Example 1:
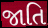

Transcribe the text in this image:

જાતિ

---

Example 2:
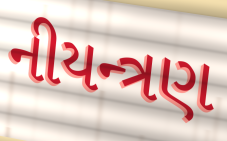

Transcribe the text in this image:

નીયન્ત્રણ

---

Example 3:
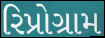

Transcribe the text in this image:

રિપ્રોગ્રામ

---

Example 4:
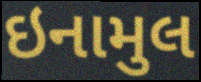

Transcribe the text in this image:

ઇનામુલ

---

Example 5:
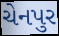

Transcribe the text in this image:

ચેનપુર